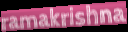
ramakrishna